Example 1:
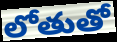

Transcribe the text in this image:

లోతుతో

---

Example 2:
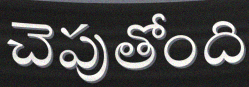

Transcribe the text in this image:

చెపుతోంది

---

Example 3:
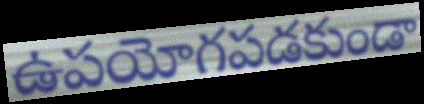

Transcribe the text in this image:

ఉపయోగపడకుండా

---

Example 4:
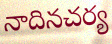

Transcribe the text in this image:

నాదినచర్య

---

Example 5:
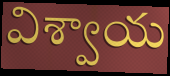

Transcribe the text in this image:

విశ్వాయ